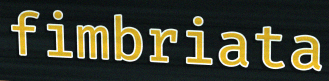
fimbriata